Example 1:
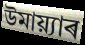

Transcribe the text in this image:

উমায়্যাৰ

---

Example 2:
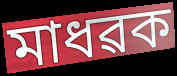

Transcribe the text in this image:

মাধৱক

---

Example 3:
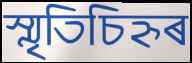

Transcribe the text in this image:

স্মৃতিচিহ্নৰ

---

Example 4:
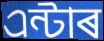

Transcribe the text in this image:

এন্টাৰ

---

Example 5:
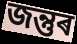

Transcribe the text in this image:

জন্তুৰ